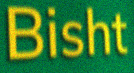
Bisht